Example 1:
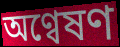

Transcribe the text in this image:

অণ্বেষণ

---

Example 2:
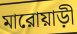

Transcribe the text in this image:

মারোয়াড়ী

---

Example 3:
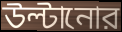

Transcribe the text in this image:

উল্টানোর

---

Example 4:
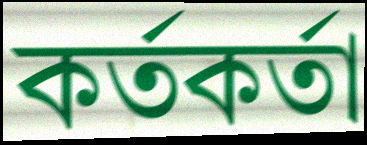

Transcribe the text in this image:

কর্তকর্তা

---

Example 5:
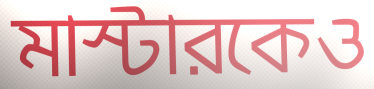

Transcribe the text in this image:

মাস্টারকেও